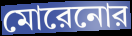
মোরেনোর